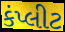
કંપ્લીટ